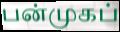
பன்முகப்